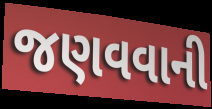
જણવવાની